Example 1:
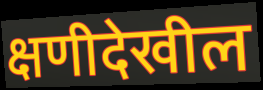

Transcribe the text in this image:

क्षणीदेखील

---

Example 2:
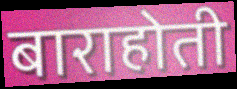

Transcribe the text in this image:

बाराहोती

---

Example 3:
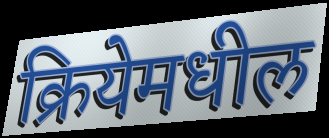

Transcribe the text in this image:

क्रियेमधील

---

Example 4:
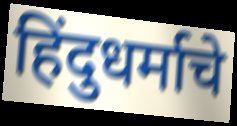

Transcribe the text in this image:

हिंदुधर्माचे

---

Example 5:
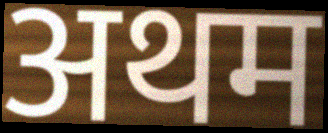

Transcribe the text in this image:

अथम